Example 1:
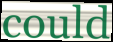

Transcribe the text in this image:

could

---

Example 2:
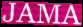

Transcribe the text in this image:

JAMA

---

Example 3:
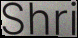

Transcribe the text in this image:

Shri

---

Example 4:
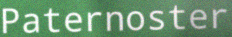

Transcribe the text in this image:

Paternoster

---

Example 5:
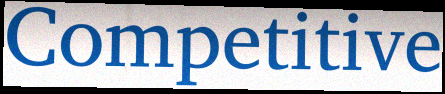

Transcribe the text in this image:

Competitive